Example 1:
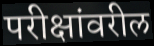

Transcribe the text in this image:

परीक्षांवरील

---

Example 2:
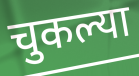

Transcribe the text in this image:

चुकल्या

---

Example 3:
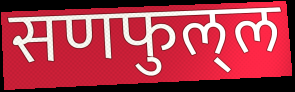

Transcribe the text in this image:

सणफुल्ल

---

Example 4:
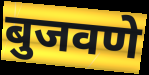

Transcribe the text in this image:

बुजवणे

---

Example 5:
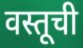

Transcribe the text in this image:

वस्तूची